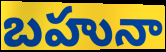
బహునా